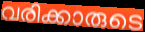
വരിക്കാരുടെ